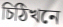
চিঠিখনে